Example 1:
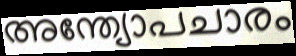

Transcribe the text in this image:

അന്ത്യോപചാരം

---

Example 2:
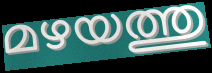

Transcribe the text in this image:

മഴയത്തു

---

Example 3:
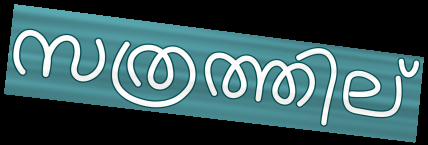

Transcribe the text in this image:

സത്രത്തില്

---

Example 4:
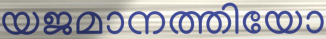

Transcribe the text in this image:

യജമാനത്തിയോ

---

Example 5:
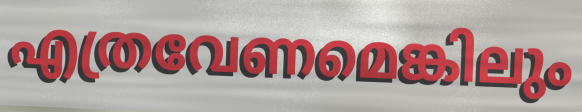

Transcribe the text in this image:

എത്രവേണമെങ്കിലും